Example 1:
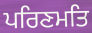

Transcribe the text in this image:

ਪਰਿਣਮਤਿ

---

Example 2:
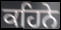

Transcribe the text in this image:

ਕਹਿਨੇ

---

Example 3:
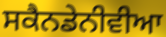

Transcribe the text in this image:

ਸਕੈਨਡੇਨੀਵੀਆ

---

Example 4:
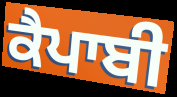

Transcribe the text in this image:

ਕੈਪਾਬੀ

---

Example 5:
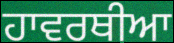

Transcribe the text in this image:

ਹਾਵਰਥੀਆ